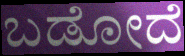
ಬಡೋದೆ